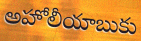
అహోలీయాబుకు